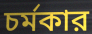
চর্মকার